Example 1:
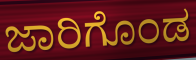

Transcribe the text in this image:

ಜಾರಿಗೊಂಡ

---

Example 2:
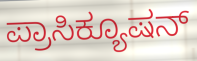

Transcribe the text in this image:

ಪ್ರಾಸಿಕ್ಯೂಷನ್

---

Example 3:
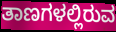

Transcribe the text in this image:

ತಾಣಗಳಲ್ಲಿರುವ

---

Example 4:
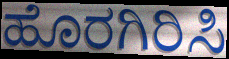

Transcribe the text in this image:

ಹೊರಗಿರಿಸಿ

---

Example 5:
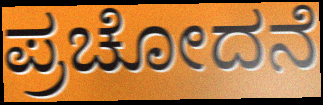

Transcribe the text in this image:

ಪ್ರಚೋದನೆ